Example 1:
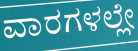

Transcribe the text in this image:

ವಾರಗಳಲ್ಲೇ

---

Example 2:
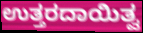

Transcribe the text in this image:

ಉತ್ತರದಾಯಿತ್ವ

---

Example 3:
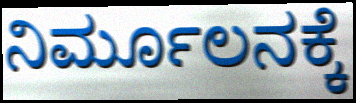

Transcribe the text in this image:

ನಿರ್ಮೂಲನಕ್ಕೆ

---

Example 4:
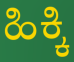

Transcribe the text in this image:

ಹಿಕ್ಕಿ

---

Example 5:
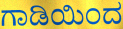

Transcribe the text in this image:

ಗಾಡಿಯಿಂದ